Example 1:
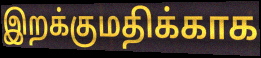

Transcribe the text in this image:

இறக்குமதிக்காக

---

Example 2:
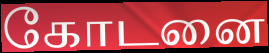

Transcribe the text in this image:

கோடனை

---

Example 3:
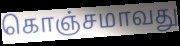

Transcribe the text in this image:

கொஞ்சமாவது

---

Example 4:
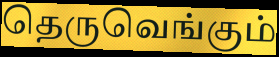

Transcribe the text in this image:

தெருவெங்கும்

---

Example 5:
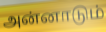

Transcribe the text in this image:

அன்னாடும்